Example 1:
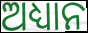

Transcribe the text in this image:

ଅଧ୍ୟାନ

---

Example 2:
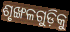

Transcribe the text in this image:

ଶୃଙ୍ଖଳଗୁଡ଼ିକୁ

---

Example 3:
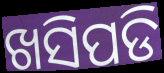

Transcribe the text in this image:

ଖସିପଡି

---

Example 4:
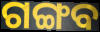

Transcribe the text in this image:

ଗଙ୍ଗବ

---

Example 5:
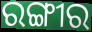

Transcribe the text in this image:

ରଙ୍ଗୀର